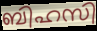
ബിഹസി